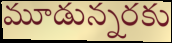
మూడున్నరకు